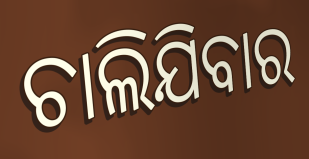
ଚାଲିଯିବାର